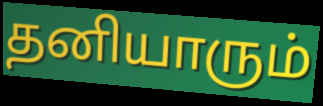
தனியாரும்